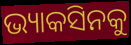
ଭ୍ୟାକସିନକୁ